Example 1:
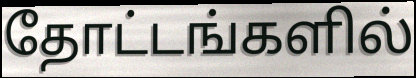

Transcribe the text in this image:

தோட்டங்களில்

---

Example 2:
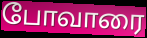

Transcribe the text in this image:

போவாரை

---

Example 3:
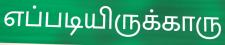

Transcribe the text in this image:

எப்படியிருக்காரு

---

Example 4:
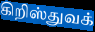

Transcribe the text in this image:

கிறிஸ்துவக்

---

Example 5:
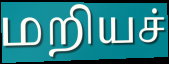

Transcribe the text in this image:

மறியச்